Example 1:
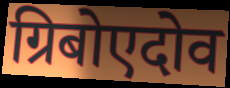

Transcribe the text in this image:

ग्रिबोएदोव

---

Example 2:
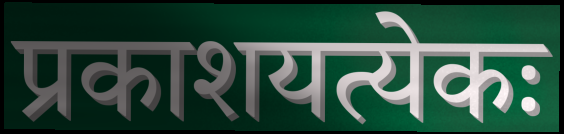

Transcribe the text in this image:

प्रकाशयत्येकः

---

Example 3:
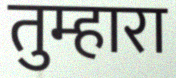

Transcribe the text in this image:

तुम्‍हारा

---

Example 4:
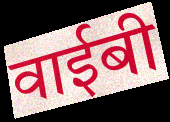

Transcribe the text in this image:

वाईबी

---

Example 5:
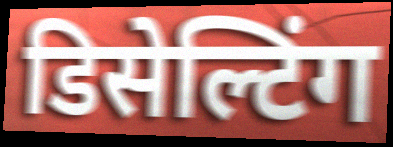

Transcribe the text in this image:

डिसेल्टिंग